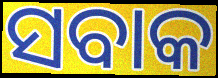
ସବାକ